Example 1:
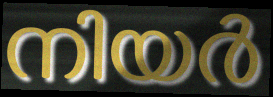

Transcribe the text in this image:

നിയർ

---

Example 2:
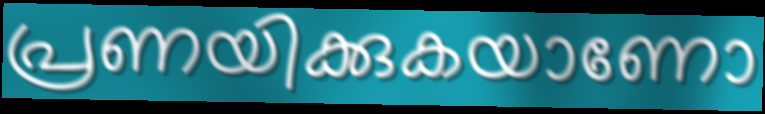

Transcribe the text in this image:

പ്രണയിക്കുകയാണോ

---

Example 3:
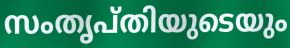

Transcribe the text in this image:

സംതൃപ്തിയുടെയും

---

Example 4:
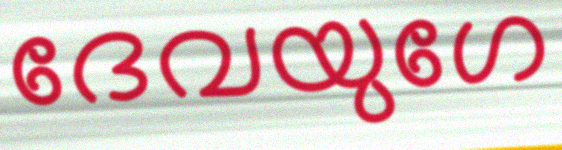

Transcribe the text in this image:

ദേവയുഗേ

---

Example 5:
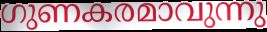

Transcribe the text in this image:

ഗുണകരമാവുന്നു